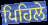
ਪਿਹਿਲੇ